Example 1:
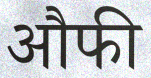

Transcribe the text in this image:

औफी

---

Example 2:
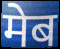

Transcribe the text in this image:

मेब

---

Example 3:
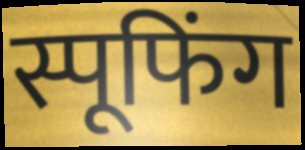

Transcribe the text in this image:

स्पूफिंग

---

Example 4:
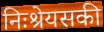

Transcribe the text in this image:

निःश्रेयसकी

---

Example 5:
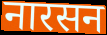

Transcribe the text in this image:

नारसन